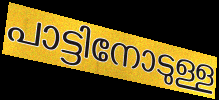
പാട്ടിനോടുള്ള